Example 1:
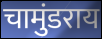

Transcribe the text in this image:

चामुंडराय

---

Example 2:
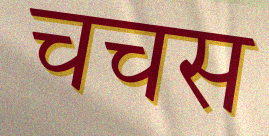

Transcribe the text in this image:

चचस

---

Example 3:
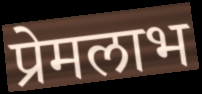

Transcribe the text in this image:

प्रेमलाभ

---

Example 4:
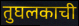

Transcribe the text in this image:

तुघलकाची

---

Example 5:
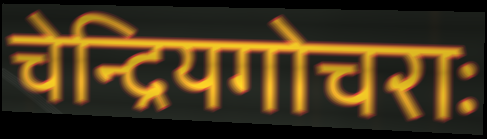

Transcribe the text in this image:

चेन्द्रियगोचराः